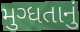
મુગ્ધતાનું